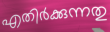
എതിർക്കുന്നതു